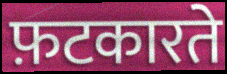
फ़टकारते